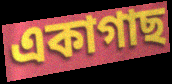
একাগাছ